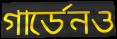
গার্ডেনও